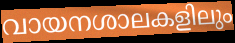
വായനശാലകളിലും